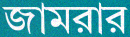
জামরার